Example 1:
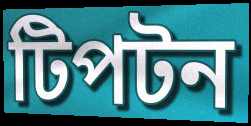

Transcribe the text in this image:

টিপটন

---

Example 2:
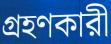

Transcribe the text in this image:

গ্রহণকারী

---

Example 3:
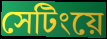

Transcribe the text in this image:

সেটিংয়ে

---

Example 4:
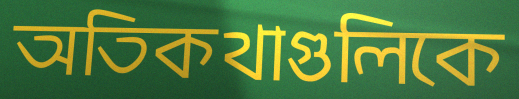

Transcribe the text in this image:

অতিকথাগুলিকে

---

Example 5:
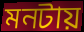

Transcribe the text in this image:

মনটায়